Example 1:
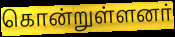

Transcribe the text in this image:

கொன்றுள்ளனர்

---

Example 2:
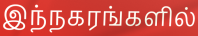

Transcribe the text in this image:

இந்நகரங்களில்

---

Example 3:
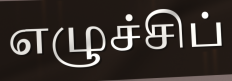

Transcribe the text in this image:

எழுச்சிப்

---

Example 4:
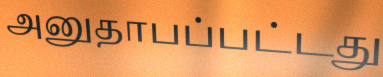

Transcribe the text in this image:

அனுதாபப்பட்டது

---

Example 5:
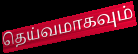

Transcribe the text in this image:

தெய்வமாகவும்